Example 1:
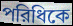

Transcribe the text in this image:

পরিধিকে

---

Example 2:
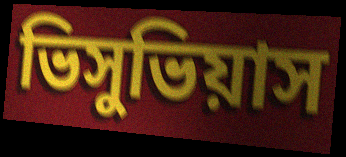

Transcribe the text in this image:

ভিসুভিয়াস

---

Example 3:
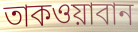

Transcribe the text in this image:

তাকওয়াবান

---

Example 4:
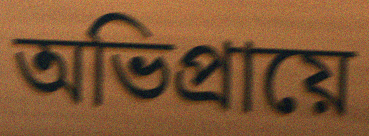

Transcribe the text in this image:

অভিপ্রায়ে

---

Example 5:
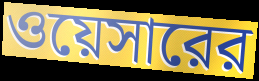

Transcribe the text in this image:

ওয়েসারের